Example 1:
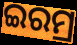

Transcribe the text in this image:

ଇରମ୍ର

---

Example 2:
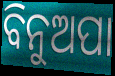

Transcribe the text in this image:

ବିନୁଅପା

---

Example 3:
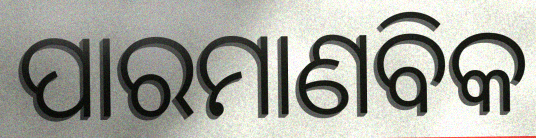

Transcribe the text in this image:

ପାରମାଣବିକ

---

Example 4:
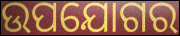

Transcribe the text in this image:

ଉପଯୋଗର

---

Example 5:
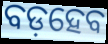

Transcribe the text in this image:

ବଡ଼ହେବ